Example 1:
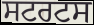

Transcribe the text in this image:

ਸਟਰਟਸ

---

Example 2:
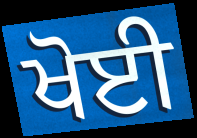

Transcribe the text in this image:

ਖੋਈ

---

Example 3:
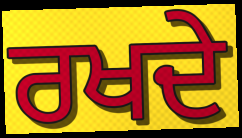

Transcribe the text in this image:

ਰਖਦੇ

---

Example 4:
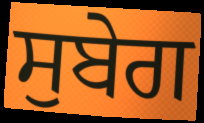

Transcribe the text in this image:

ਸੁਬੇਗ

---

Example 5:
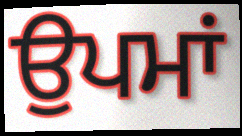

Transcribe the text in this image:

ਉਪਮਾਂ